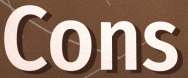
Cons